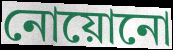
নোয়োনো